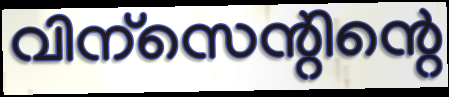
വിന്സെന്റിന്റെ